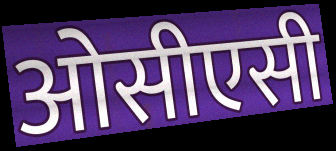
ओसीएसी